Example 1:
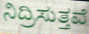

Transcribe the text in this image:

ನಿದ್ರಿಸುತ್ತವೆ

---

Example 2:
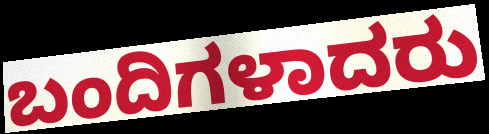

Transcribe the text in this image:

ಬಂದಿಗಳಾದರು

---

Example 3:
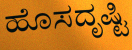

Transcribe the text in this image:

ಹೊಸದೃಷ್ಟಿ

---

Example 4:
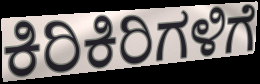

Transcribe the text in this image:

ಕಿರಿಕಿರಿಗಳಿಗೆ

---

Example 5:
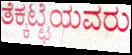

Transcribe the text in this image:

ತೆಕ್ಕಟ್ಟೆಯವರು